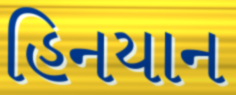
હિનયાન